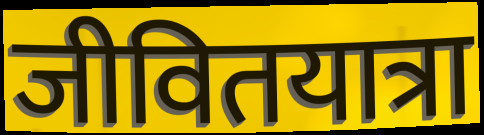
जीवितयात्रा